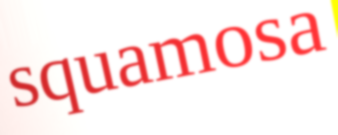
squamosa